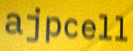
ajpcell